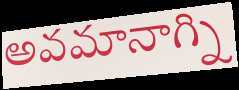
అవమానాగ్ని